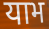
याभ